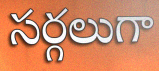
సర్గలుగా